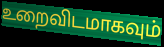
உறைவிடமாகவும்